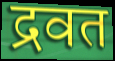
द्रवत